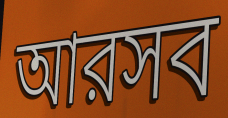
আরসব